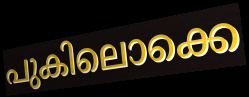
പുകിലൊക്കെ